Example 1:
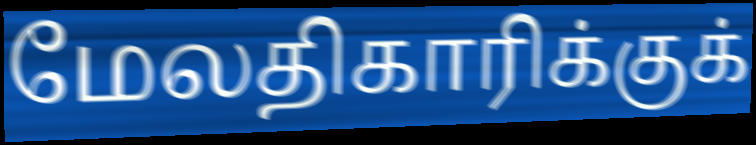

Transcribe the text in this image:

மேலதிகாரிக்குக்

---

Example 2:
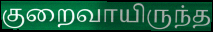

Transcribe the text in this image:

குறைவாயிருந்த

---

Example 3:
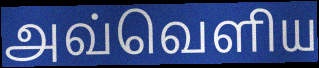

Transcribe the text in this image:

அவ்வெளிய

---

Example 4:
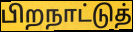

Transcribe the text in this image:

பிறநாட்டுத்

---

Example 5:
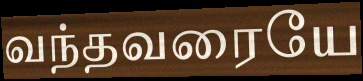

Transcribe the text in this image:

வந்தவரையே